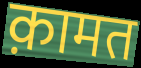
क़ामत